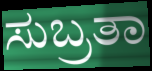
ಸುಬ್ರತಾ